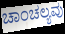
ಚಾಂಚಲ್ಯವು